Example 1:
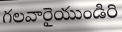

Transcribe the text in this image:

గలవారైయుండిరి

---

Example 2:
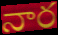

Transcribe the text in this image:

నార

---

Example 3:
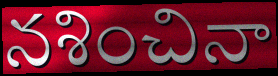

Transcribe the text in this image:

నశించినా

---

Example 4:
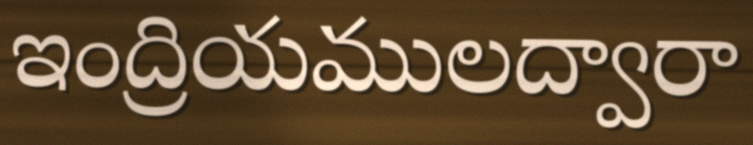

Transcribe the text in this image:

ఇంద్రియములద్వారా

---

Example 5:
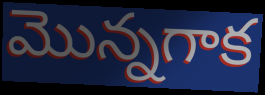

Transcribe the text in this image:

మొన్నగాక